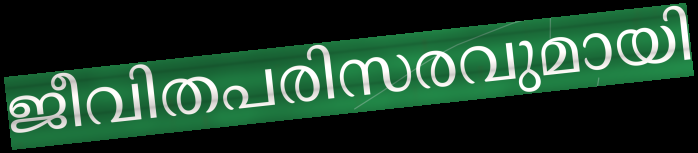
ജീവിതപരിസരവുമായി